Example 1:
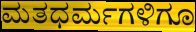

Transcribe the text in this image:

ಮತಧರ್ಮಗಳಿಗೂ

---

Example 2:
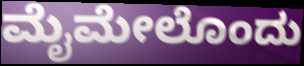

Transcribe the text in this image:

ಮೈಮೇಲೊಂದು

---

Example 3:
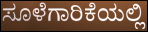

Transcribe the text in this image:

ಸೂಳೆಗಾರಿಕೆಯಲ್ಲಿ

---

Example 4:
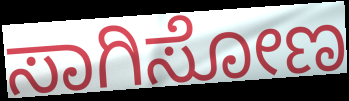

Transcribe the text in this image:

ಸಾಗಿಸೋಣ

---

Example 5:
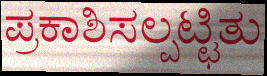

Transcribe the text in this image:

ಪ್ರಕಾಶಿಸಲ್ಪಟ್ಟಿತು